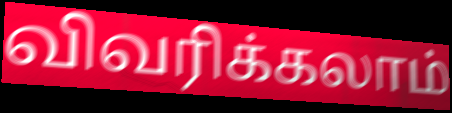
விவரிக்கலாம்